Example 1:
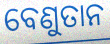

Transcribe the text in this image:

ବେଣୁତାନ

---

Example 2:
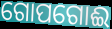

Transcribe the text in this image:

ଗୋପଗୋଈ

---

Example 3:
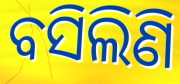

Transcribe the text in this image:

ବସିଲିଣି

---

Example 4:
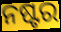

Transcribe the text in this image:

ନଷ୍ଟର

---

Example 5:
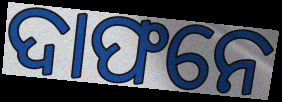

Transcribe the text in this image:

ଦାଫନେ